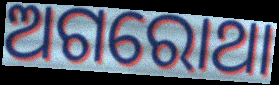
ଅଗରୋଥା